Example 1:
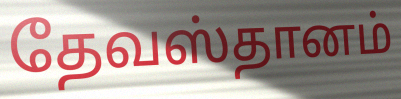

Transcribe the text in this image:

தேவஸ்தானம்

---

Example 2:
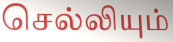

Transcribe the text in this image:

செல்லியும்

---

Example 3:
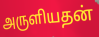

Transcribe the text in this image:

அருளியதன்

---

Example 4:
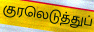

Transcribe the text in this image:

குரலெடுத்துப்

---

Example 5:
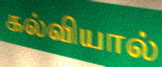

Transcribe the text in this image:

கல்வியால்